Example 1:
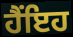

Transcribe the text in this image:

ਹੈਂਇਹ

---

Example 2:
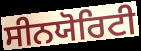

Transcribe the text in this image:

ਸੀਨਯੋਰਿਟੀ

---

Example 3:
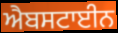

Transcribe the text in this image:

ਐਬਸਟਾਈਨ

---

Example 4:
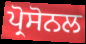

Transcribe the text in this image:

ਪ੍ਰੋਸੋਨਲ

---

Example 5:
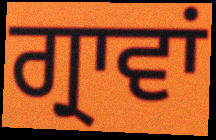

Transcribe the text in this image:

ਗ੍ਰਾਵਾਂ